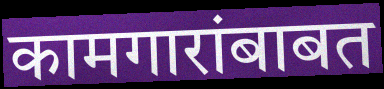
कामगारांबाबत